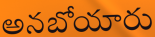
అనబోయారు